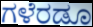
ಗಳೆರಡೂ